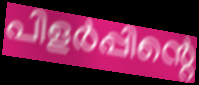
പിളർപ്പിന്റെ